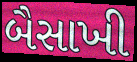
બૈસાખી